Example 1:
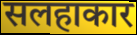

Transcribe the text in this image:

सलहाकार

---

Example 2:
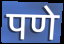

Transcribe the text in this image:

पणे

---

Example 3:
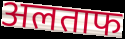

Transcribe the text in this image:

अलताफ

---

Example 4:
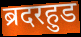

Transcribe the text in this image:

ब्रदरहुड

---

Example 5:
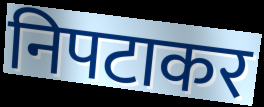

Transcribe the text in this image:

निपटाकर